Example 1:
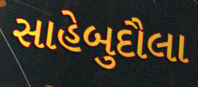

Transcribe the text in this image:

સાહેબુદૌલા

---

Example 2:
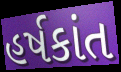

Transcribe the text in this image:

હર્ષકાંત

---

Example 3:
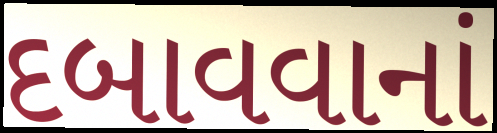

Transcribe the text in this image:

દબાવવાનાં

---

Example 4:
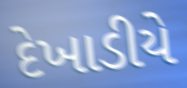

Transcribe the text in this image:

દેખાડીયે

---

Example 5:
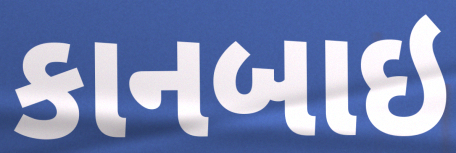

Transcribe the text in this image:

કાનબાઇ